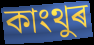
কাংথুৰ